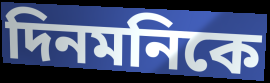
দিনমনিকে